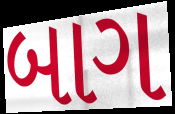
બાગ